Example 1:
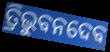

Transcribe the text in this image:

ତ୍ରିଭୁବନଦେବ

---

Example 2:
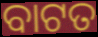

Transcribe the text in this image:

ବାଟତ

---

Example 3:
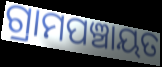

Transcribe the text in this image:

ଗ୍ରାମପଞ୍ଚାୟତ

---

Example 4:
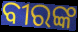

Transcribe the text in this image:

ବୀରଙ୍କ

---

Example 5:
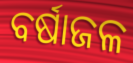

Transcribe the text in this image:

ବର୍ଷାଜଳ